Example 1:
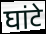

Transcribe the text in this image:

घांटे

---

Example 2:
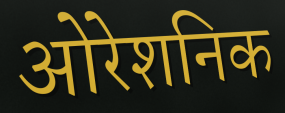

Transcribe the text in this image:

ओरेशनिक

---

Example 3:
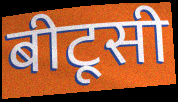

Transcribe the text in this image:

बीटूसी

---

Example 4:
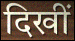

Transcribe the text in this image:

दिखीं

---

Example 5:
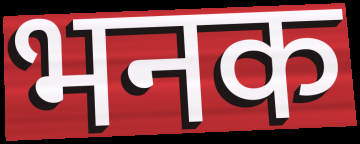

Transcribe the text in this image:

भनक